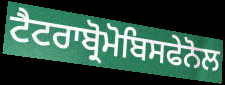
ਟੈਟਰਾਬ੍ਰੋਮੋਬਿਸਫੇਨੋਲ